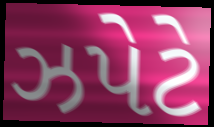
ઝપેટે